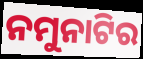
ନମୁନାଟିର